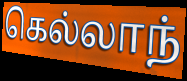
கெல்லாந்